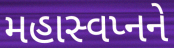
મહાસ્વપ્નને